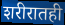
शरीरातही